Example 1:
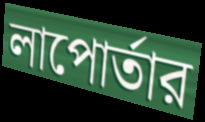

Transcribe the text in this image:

লাপোর্তার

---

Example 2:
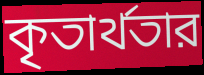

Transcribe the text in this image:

কৃতার্থতার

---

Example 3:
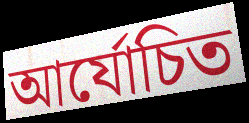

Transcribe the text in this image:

আর্যোচিত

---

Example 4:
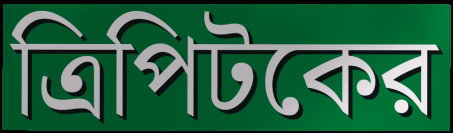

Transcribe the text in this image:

ত্রিপিটকের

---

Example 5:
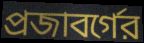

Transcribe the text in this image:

প্রজাবর্গের